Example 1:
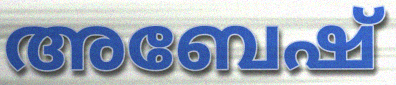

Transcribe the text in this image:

അബേഷ്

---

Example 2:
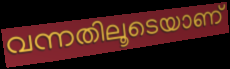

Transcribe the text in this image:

വന്നതിലൂടെയാണ്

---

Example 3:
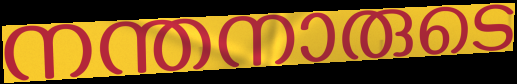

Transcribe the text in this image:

നന്തനാരുടെ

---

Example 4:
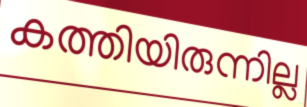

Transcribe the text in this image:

കത്തിയിരുന്നില്ല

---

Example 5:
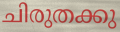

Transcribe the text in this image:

ചിരുതക്കു